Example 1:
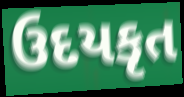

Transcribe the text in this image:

ઉદયકૃત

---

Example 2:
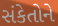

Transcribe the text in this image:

સંકેતોને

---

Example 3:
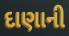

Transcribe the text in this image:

દાણાની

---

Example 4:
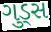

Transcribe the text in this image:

ગુડ્સ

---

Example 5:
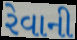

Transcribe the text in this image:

રેવાની